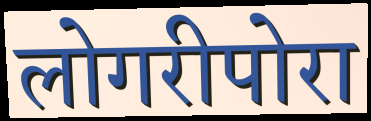
लोगरीपोरा